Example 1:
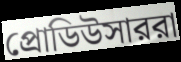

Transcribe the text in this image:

প্রোডিউসাররা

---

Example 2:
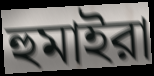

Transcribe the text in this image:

হুমাইরা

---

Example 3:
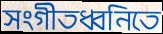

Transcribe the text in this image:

সংগীতধ্বনিতে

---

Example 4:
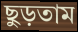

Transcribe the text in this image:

ছুড়তাম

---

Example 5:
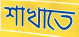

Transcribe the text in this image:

শাখাতে